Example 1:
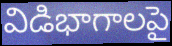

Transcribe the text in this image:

విడిభాగాలపై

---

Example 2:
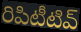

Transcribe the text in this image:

రిపిటీటివ్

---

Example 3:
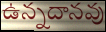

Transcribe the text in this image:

ఉన్నదానవు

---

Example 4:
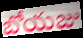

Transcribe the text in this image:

బోయజు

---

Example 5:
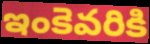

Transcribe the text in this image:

ఇంకెవరికి